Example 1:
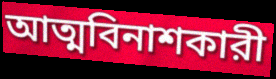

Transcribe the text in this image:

আত্মবিনাশকারী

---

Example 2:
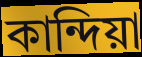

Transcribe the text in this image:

কান্দিয়া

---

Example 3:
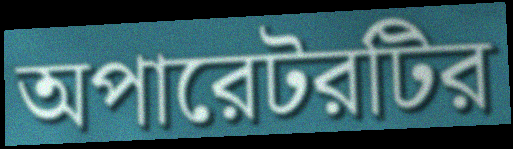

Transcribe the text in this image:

অপারেটরটির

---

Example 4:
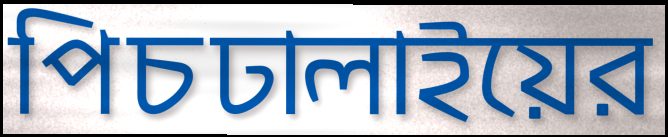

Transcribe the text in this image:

পিচঢালাইয়ের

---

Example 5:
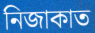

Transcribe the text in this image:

নিজাকাত